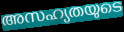
അസഹ്യതയുടെ